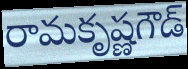
రామకృష్ణగౌడ్